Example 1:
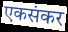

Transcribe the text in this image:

एकसंकर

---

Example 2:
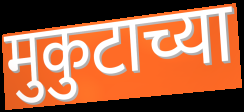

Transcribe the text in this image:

मुकुटाच्या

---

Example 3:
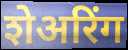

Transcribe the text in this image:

शेअरिंग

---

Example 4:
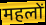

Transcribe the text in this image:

महलों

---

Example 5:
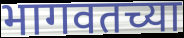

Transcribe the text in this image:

भागवतच्या